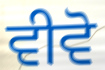
ਵੀਵੋ